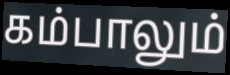
கம்பாலும்